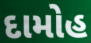
દામોહ